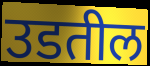
उडतील